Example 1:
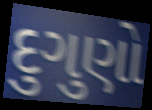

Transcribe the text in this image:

દુગુણો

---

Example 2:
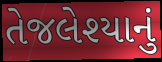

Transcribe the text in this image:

તેજલેશ્યાનું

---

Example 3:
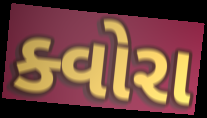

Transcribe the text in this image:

ક્વોરા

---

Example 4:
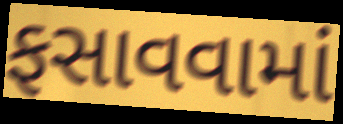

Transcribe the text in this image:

ફસાવવામાં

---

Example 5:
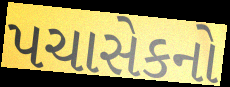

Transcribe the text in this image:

પચાસેકનો